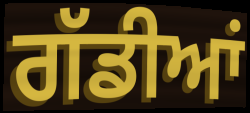
ਗੱਡੀਆਂ